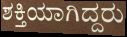
ಶಕ್ತಿಯಾಗಿದ್ದರು